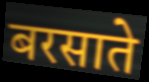
बरसाते